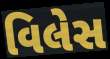
વિલેસ